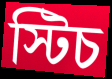
স্টিচ